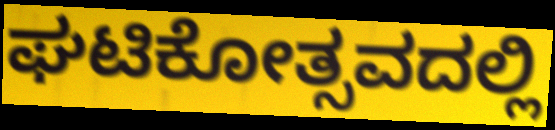
ಘಟಿಕೋತ್ಸವದಲ್ಲಿ